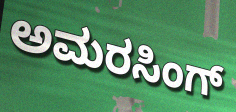
ಅಮರಸಿಂಗ್